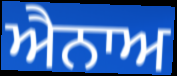
ਐਨਾਅ